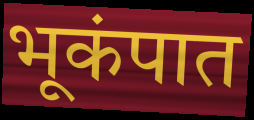
भूकंपात